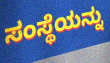
ಸಂಸ್ಥೆಯನ್ನು